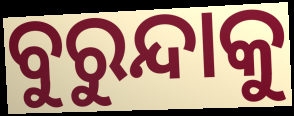
ବୁରୁନ୍ଦାକୁ